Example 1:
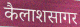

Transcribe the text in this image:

कैलाशसागर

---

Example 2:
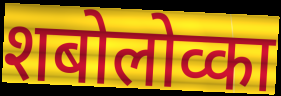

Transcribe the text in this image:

शबोलोव्का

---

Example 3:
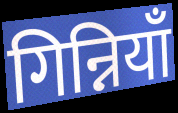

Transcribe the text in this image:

गिन्नियाँ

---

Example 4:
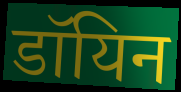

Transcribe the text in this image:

डॉयिन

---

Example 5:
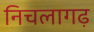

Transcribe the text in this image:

निचलागढ़